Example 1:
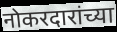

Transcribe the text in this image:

नोकरदारांच्या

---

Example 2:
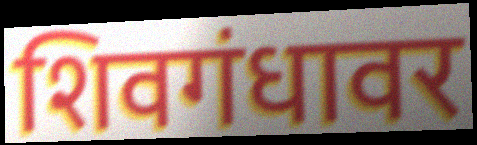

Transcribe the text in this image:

शिवगंधावर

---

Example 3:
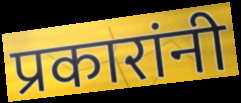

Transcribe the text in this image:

प्रकारांनी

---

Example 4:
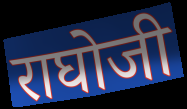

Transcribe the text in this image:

राघोजी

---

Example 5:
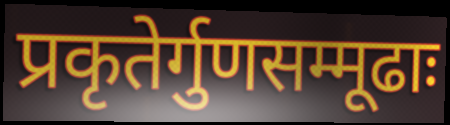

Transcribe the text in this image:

प्रकृतेर्गुणसम्मूढाः